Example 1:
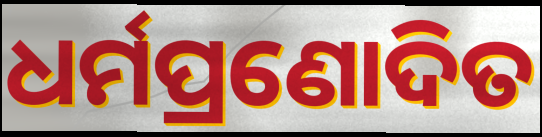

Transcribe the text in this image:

ଧର୍ମପ୍ରଣୋଦିତ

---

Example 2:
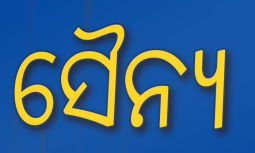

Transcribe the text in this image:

ସୈନ୍ୟ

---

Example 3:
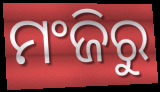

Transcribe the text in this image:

ମଂଜିରୁ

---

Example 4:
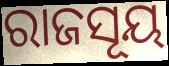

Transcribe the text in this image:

ରାଜସୂୟ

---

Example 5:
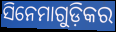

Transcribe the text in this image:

ସିନେମାଗୁଡ଼ିକର